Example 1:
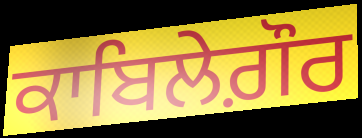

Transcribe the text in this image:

ਕਾਬਿਲੇਗ਼ੌਰ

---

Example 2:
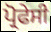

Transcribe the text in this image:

ਪ੍ਰੋਫੇਸੀ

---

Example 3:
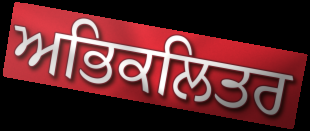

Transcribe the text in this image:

ਅਭਿਕਲਿਤਰ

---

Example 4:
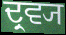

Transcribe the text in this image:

ਦ੍ਰਵ੍ਯ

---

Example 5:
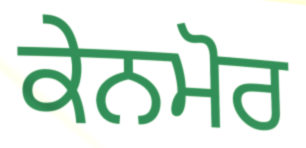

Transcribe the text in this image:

ਕੇਨਮੋਰ